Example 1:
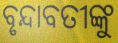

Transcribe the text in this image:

ବୃନ୍ଦାବତୀଙ୍କୁ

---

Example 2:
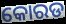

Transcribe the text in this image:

କୋରଡ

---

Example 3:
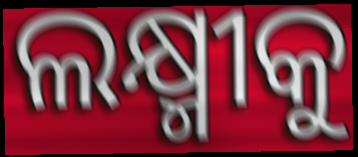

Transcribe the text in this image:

ଲକ୍ଷ୍ମୀକୁ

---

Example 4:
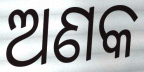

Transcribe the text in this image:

ଅଣକ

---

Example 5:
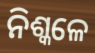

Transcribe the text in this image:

ନିଶ୍କଳେ